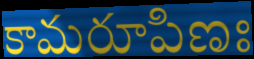
కామరూపిణః